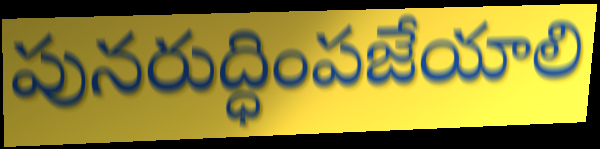
పునరుద్ధింపజేయాలి